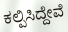
ಕಲ್ಪಿಸಿದ್ದೇವೆ